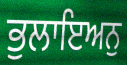
ਭੁਲਾਇਅਨੁ